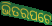
ଭିତରପଟେ